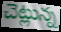
చెట్లున్న